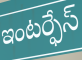
ఇంటర్ఫేస్